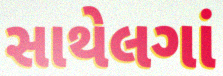
સાથેલગાં